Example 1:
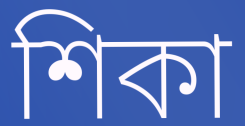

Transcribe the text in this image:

শিকা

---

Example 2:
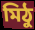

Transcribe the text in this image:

মিঠু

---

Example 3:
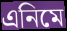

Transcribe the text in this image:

এনিমে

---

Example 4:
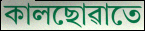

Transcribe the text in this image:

কালছোৱাতে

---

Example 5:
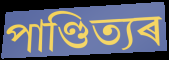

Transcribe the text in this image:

পাণ্ডিত্যৰ